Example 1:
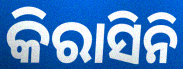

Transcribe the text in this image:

କିରାସିନି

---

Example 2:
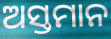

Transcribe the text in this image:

ଅସ୍ତମାନ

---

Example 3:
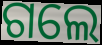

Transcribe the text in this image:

ଗଲେ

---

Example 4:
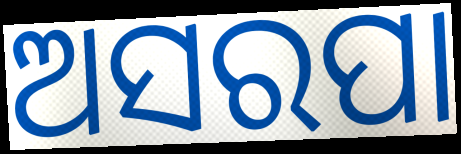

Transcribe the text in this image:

ଅସରପା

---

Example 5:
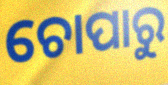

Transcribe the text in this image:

ଚୋପାରୁ